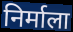
निर्माला